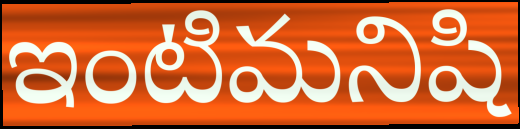
ఇంటిమనిషి